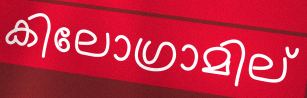
കിലോഗ്രാമില്